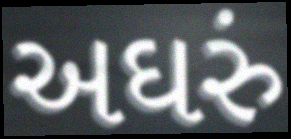
અઘરું